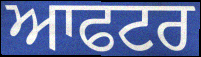
ਆਫਟਰ